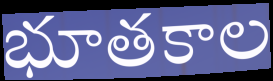
భూతకాల